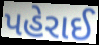
પહેરાઈ